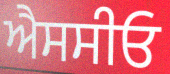
ਐਸਸੀਓ